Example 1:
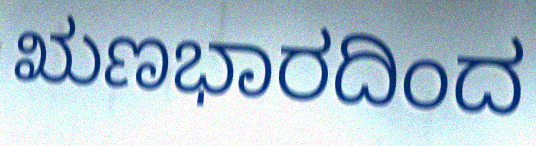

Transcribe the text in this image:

ಋಣಭಾರದಿಂದ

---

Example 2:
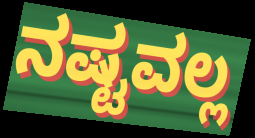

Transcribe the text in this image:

ನಷ್ಟವಲ್ಲ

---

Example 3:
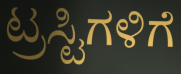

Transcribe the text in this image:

ಟ್ರಸ್ಟಿಗಳಿಗೆ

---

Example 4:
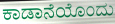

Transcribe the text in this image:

ಕಾಡಾನೆಯೊಂದು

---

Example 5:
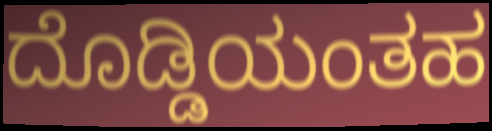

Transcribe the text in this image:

ದೊಡ್ಡಿಯಂತಹ